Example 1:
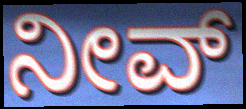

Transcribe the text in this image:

ನೀವ್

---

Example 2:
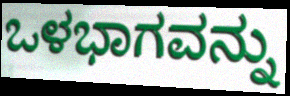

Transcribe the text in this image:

ಒಳಭಾಗವನ್ನು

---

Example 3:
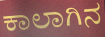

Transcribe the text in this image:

ಕಾಲಾಗಿನ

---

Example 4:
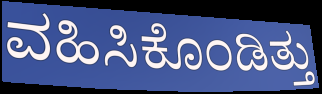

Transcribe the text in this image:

ವಹಿಸಿಕೊಂಡಿತ್ತು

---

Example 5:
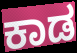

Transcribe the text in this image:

ಕಾಡ